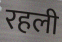
रहली